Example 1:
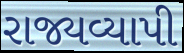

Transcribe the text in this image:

રાજ્યવ્યાપી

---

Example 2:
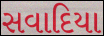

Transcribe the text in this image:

સવાદિયા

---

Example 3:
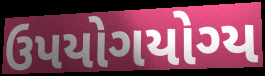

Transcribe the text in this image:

ઉપયોગયોગ્ય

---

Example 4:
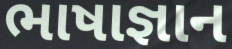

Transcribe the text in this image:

ભાષાજ્ઞાન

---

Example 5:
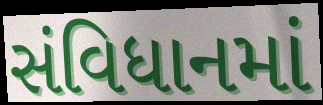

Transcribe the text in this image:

સંવિધાનમાં